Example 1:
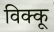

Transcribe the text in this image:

विक्कू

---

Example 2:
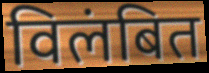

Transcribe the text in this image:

विलंबित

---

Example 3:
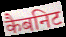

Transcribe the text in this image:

कैबनिट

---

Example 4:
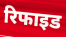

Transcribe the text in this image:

रिफाइड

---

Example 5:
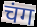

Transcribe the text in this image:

चंग